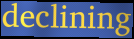
declining